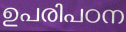
ഉപരിപഠന